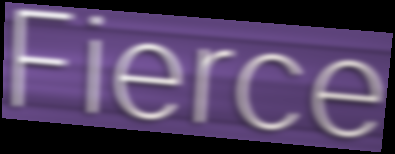
Fierce